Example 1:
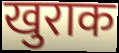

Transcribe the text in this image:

खुराक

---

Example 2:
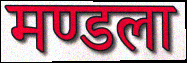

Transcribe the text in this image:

मण्डला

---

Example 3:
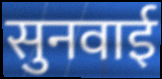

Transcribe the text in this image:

सुनवाई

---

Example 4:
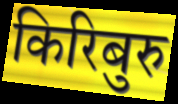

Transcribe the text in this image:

किरिबुरु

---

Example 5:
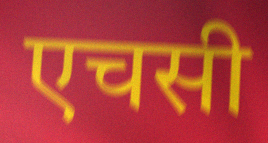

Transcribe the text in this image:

एचसी